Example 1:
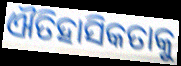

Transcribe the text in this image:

ଐତିହାସିକତାକୁ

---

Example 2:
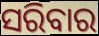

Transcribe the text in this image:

ସରିବାର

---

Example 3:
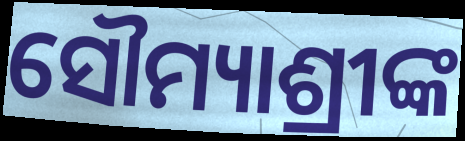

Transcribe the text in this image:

ସୌମ୍ୟାଶ୍ରୀଙ୍କ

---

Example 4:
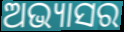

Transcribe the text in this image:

ଅଭ୍ୟାସର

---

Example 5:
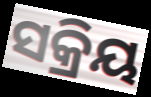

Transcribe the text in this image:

ସକ୍ରିୟ